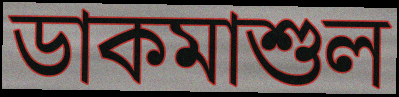
ডাকমাশুল